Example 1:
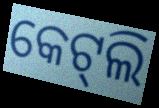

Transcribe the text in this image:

କେଟ୍‍ଲି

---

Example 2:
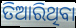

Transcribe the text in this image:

ତିଆରିଥିବା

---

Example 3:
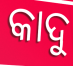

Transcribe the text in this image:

କାଦୁ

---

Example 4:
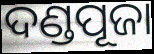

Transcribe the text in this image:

ଦଣ୍ଡପୂଜା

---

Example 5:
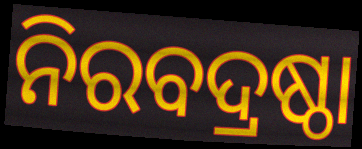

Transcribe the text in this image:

ନିରବଦ୍ରଷ୍ଠା